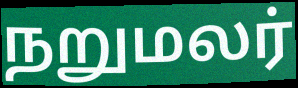
நறுமலர்